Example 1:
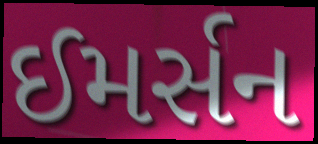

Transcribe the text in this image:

ઈમર્સન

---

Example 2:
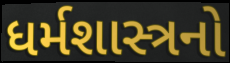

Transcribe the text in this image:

ધર્મશાસ્ત્રનો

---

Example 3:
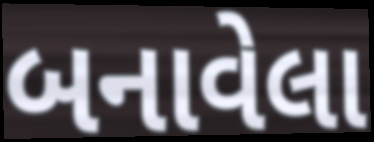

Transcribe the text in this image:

બનાવેલા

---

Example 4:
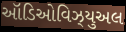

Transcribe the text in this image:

ઑડિઓવિઝ્યુઅલ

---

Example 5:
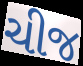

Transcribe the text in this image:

ચીજ